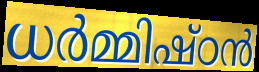
ധർമ്മിഷ്ഠൻ